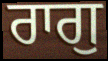
ਰਾਗੁ